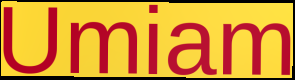
Umiam